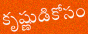
కృష్ణుడికోసం